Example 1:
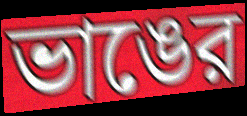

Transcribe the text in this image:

ভাঙের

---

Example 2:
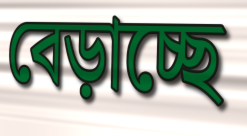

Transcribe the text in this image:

বেড়াচ্ছে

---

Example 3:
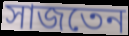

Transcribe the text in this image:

সাজতেন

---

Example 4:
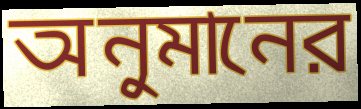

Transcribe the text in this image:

অনুমানের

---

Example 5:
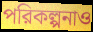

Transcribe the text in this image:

পরিকল্পনাও